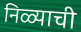
निळ्याची